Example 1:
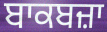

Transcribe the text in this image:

ਬਾਕਬਜ਼ਾ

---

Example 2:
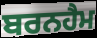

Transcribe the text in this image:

ਬਰਨਹੈਮ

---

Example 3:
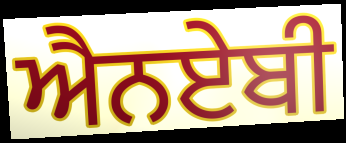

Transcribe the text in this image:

ਐਨਏਬੀ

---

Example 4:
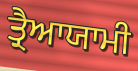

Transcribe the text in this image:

ਤ੍ਰੈਆਯਾਮੀ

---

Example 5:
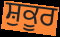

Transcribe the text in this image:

ਸ਼ੁਕੂਰ